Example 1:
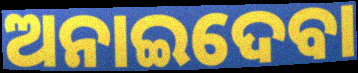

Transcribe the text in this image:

ଅନାଇଦେବା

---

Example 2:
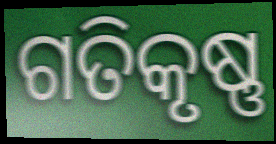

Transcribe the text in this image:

ଗତିକୃଷ୍ଣ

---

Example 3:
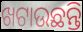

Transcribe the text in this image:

ଖଟାଉଛନ୍ତି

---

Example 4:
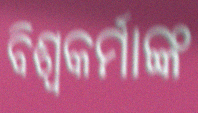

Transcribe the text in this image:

ବିଶ୍ୱକର୍ମାଙ୍କ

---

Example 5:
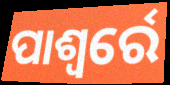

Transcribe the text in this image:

ପାଶ୍ୱର୍ରେ